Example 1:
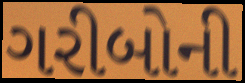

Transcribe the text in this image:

ગરીબોની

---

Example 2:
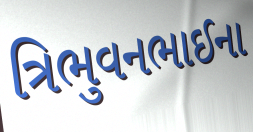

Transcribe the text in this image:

ત્રિભુવનભાઈના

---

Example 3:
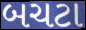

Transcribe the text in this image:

બચટા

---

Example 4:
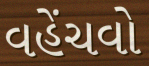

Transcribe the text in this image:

વહેંચવો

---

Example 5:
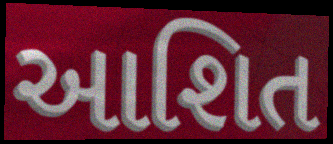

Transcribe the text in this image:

આશિત